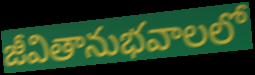
జీవితానుభవాలలో